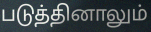
படுத்தினாலும்